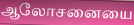
ஆலோசனையை